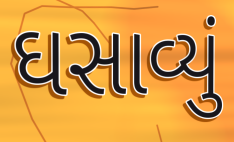
ઘસાવ્યું